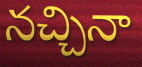
నచ్చినా